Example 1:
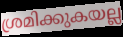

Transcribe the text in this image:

ശ്രമിക്കുകയല്ല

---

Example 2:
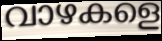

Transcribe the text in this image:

വാഴകളെ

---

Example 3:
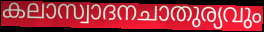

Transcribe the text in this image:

കലാസ്വാദനചാതുര്യവും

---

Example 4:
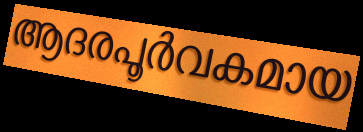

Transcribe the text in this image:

ആദരപൂർവകമായ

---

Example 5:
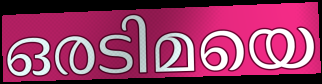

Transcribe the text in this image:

ഒരടിമയെ